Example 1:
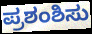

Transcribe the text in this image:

ಪ್ರಶಂಶಿಸು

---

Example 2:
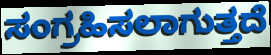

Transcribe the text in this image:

ಸಂಗ್ರಹಿಸಲಾಗುತ್ತದೆ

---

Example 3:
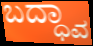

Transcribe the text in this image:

ಬದ್ಧ್ವಾ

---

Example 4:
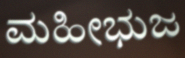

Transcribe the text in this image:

ಮಹೀಭುಜ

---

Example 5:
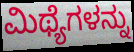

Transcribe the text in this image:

ಮಿಥ್ಯೆಗಳನ್ನು